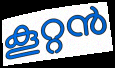
കൂറ്റൻ